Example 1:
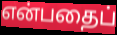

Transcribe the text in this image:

என்பதைப்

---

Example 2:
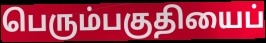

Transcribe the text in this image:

பெரும்பகுதியைப்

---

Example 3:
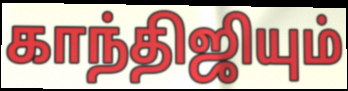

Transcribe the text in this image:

காந்திஜியும்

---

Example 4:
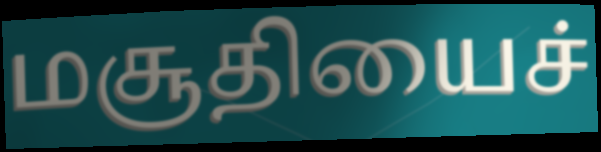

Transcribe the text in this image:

மசூதியைச்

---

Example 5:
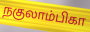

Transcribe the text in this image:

நகுலாம்பிகா